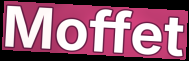
Moffet